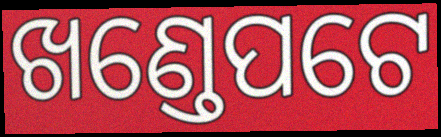
ଖଣ୍ଡେପଟେ